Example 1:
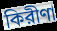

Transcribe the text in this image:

কিরীণা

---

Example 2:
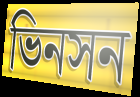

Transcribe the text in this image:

ভিনসন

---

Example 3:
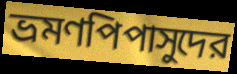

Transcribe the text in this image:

ভ্রমণপিপাসুদের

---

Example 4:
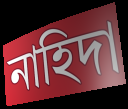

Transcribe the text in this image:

নাহিদা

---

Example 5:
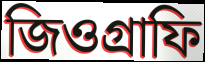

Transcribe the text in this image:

জিওগ্রাফি